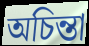
অচিন্তা